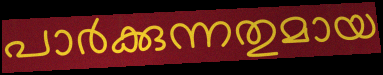
പാർക്കുന്നതുമായ